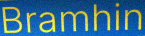
Bramhin